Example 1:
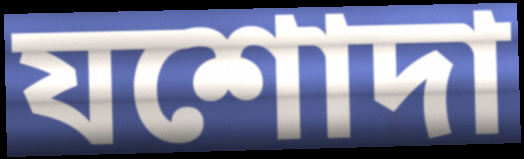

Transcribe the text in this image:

যশোদা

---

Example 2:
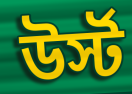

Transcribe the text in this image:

উর্স্ট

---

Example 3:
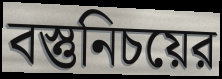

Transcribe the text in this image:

বস্তুনিচয়ের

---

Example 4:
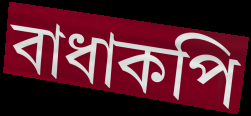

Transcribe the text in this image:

বাধাকপি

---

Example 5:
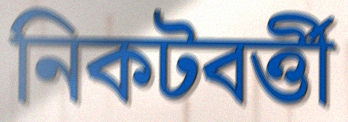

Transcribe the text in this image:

নিকটবর্ত্তী